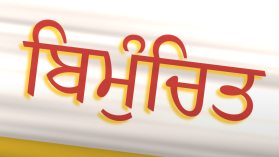
ਬਿਮੁੰਚਿਤ